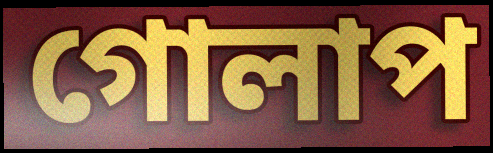
গোলাপ